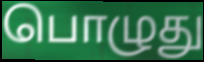
பொழுது